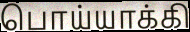
பொய்யாக்கி